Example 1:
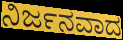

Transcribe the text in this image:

ನಿರ್ಜನವಾದ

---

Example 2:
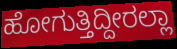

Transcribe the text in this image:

ಹೋಗುತ್ತಿದ್ದೀರಲ್ಲಾ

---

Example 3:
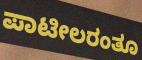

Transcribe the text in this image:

ಪಾಟೀಲರಂತೂ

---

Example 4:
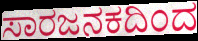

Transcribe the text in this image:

ಸಾರಜನಕದಿಂದ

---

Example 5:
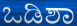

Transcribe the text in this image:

ಒಡಿಶಾ